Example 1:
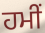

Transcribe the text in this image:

ਹਮੀਂ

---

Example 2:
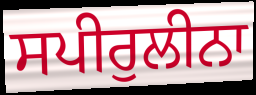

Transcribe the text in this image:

ਸਪੀਰੁਲੀਨਾ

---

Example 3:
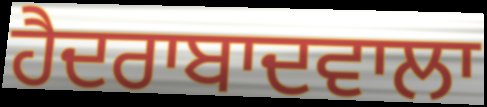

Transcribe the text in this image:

ਹੈਦਰਾਬਾਦਵਾਲਾ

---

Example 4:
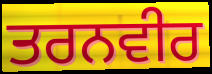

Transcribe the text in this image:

ਤਰਨਵੀਰ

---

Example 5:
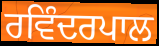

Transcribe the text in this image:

ਰਵਿੰਦਰਪਾਲ